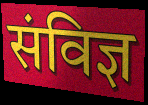
संविज्ञ